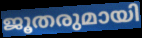
ജൂതരുമായി